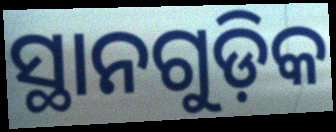
ସ୍ଥାନଗୁଡ଼ିକ